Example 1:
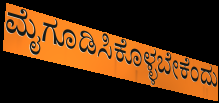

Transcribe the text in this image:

ಮೈಗೂಡಿಸಿಕೊಳ್ಳಬೇಕೆಂದು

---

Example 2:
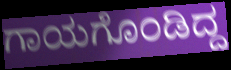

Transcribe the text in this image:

ಗಾಯಗೊಂಡಿದ್ದ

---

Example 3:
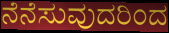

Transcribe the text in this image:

ನೆನೆಸುವುದರಿಂದ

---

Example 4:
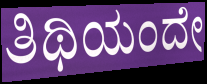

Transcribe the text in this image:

ತಿಥಿಯಂದೇ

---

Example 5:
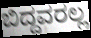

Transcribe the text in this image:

ಬಿದ್ದವರಲ್ಲ